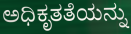
ಅಧಿಕೃತತೆಯನ್ನು